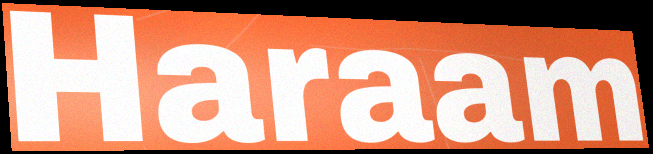
Haraam